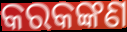
କରକଙ୍କଣ